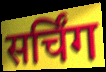
सर्चिंग